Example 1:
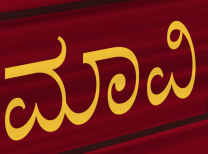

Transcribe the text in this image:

ಮಾವಿ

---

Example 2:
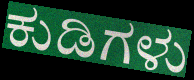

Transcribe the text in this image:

ಕುಡಿಗಳು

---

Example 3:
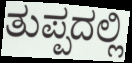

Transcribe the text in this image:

ತುಪ್ಪದಲ್ಲಿ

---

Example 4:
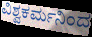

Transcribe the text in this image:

ವಿಶ್ವಕರ್ಮನಿಂದ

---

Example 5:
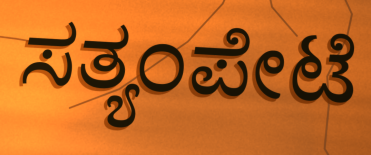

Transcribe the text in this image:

ಸತ್ಯಂಪೇಟೆ